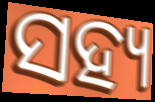
ସହ୍ଯ